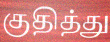
குதித்து